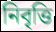
নিবৃত্তি